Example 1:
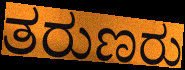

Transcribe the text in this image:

ತರುಣರು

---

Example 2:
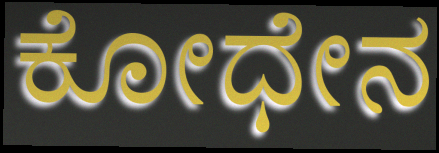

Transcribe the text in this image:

ಕೋಧೇನ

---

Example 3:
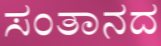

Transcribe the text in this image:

ಸಂತಾನದ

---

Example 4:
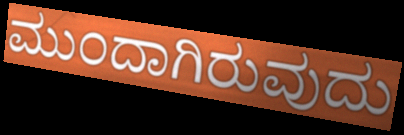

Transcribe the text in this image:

ಮುಂದಾಗಿರುವುದು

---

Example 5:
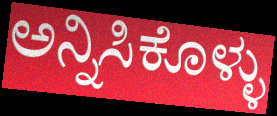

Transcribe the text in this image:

ಅನ್ನಿಸಿಕೊಳ್ಳು